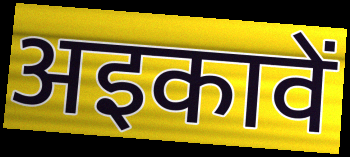
अइकावें